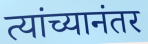
त्यांच्यानंतर